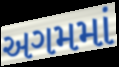
અગમમાં